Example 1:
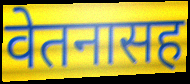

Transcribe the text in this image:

वेतनासह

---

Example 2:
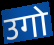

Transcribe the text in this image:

उगो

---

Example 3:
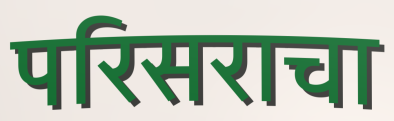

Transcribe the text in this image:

परिसराचा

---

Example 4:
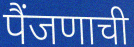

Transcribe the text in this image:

पैंजणाची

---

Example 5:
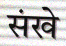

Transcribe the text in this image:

संखे